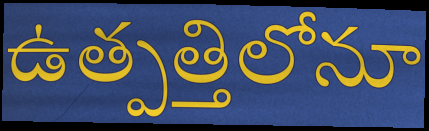
ఉత్పత్తిలోనూ